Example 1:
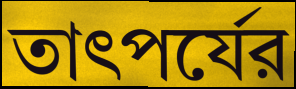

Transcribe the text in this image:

তাৎপর্যের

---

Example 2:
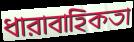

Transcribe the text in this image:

ধারাবাহিকতা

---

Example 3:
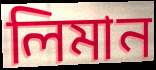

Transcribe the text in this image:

লিমান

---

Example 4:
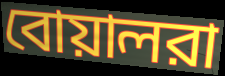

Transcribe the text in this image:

বোয়ালরা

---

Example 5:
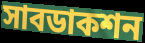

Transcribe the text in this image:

সাবডাকশন